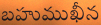
బహుముఖీన